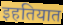
इहतियात